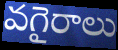
వగైరాలు